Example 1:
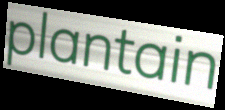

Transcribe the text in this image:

plantain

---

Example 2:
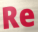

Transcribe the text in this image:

Re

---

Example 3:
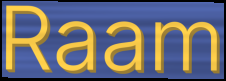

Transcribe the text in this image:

Raam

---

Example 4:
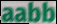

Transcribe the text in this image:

aabb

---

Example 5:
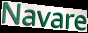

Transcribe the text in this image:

Navare